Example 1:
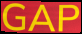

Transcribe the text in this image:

GAP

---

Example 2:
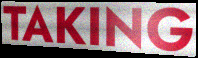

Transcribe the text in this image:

TAKING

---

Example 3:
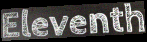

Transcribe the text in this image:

Eleventh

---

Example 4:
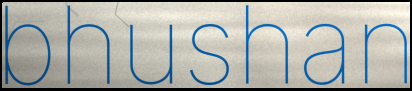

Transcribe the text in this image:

bhushan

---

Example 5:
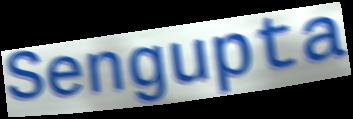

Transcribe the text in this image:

Sengupta